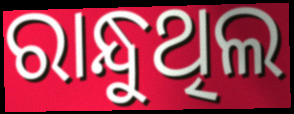
ରାନ୍ଧୁଥିଲ